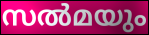
സൽമയും